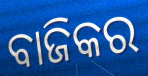
ବାଜିକର